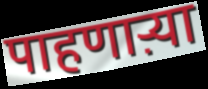
पाहणाऱ्‍या